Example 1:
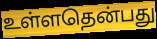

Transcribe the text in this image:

உள்ளதென்பது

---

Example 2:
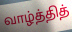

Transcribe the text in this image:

வாழ்த்தித்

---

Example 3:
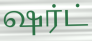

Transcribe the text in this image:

ஷர்ட்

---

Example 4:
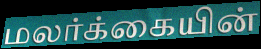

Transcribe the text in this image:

மலர்க்கையின்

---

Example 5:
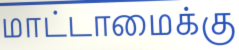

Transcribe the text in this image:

மாட்டாமைக்கு